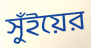
সুঁইয়ের